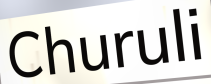
Churuli